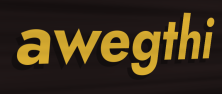
awegthi